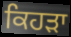
ਕਿਹੜਾ